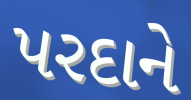
પરદાને